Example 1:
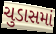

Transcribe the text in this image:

ચુડાસમાં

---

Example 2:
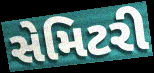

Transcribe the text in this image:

સેમિટરી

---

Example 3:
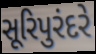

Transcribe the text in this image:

સૂરિપુરંદરે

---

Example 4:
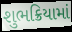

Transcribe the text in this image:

શુભક્રિયામાં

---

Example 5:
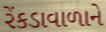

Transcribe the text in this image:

રેંકડાવાળાને